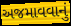
અજમાવવાનું